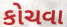
કોચવા